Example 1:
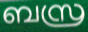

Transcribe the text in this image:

ബസ്ര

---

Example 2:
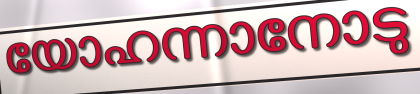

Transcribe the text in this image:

യോഹന്നാനോടു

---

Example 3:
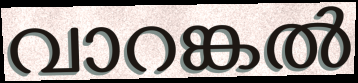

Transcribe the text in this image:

വാറങ്കൽ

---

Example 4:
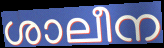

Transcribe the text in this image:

ശാലീന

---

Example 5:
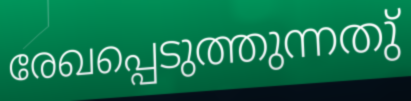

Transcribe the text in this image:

രേഖപ്പെടുത്തുന്നതു്